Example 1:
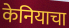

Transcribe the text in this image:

केनियाचा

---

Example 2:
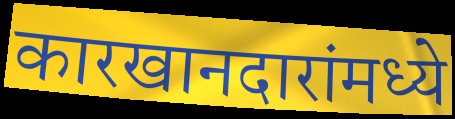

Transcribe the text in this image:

कारखानदारांमध्ये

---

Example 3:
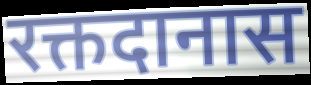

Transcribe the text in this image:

रक्तदानास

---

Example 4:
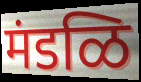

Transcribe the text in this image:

मंडळि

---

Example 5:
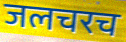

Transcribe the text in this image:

जलचरच